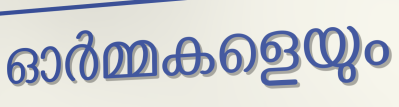
ഓർമ്മകളെയും